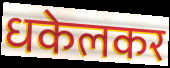
धकेलकर